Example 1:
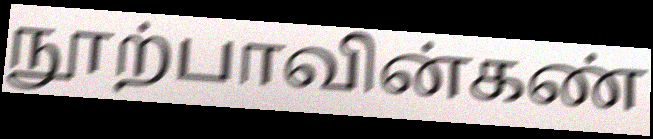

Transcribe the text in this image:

நூற்பாவின்கண்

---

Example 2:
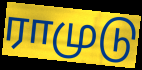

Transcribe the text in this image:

ராமுடு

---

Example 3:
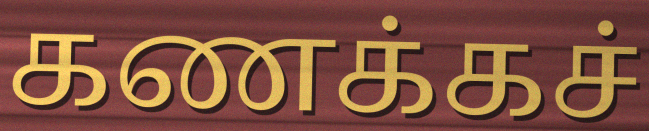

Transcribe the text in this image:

கணக்கச்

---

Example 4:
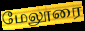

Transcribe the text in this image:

மேலூரை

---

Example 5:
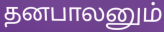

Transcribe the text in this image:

தனபாலனும்